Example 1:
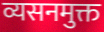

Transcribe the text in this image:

व्यसनमुक्त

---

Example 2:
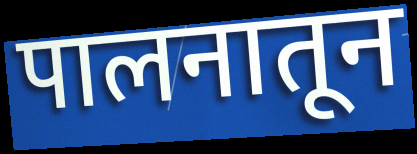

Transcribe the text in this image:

पालनातून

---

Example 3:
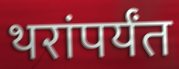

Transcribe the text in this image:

थरांपर्यंत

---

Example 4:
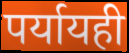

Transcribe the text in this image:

पर्यायही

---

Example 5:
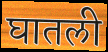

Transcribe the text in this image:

घातली